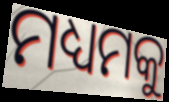
ମଧ୍ୟମକୁ